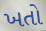
ખતો